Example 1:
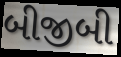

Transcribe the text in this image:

બીજીબી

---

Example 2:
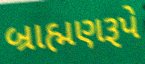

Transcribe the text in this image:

બ્રાહ્મણરૂપે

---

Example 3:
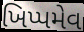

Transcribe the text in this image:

ખિપ્પમેવ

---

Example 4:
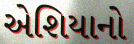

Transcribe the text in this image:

એશિયાનો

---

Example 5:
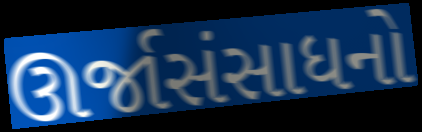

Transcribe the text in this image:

ઊર્જાસંસાધનો